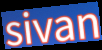
sivan